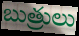
బుత్రులు